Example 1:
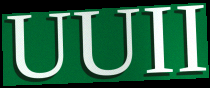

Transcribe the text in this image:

UUII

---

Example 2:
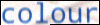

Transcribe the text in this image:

colour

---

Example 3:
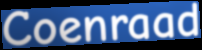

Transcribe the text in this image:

Coenraad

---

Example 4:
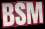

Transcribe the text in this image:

BSM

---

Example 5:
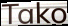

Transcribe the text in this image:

Tako